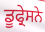
ਡੂਫ੍ਰੇਸਨੇ